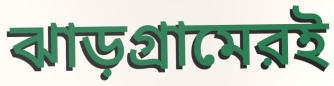
ঝাড়গ্রামেরই